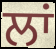
ਲਾਂ